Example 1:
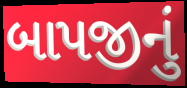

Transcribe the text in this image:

બાપજીનું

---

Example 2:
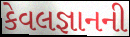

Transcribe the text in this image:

કેવલજ્ઞાનની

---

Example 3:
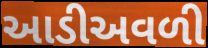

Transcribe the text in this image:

આડીઅવળી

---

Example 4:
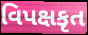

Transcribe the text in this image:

વિપક્ષકૃત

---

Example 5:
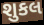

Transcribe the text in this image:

શુકલ